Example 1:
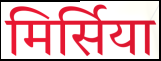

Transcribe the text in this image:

मिर्सिया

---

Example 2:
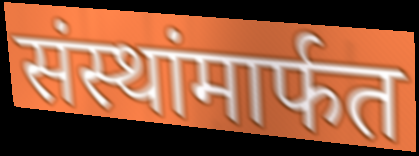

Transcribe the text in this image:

संस्थांमार्फत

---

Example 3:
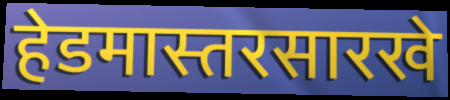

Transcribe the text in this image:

हेडमास्तरसारखे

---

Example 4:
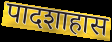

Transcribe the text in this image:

पादशाहास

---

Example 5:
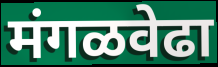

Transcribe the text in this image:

मंगळवेढा